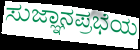
ಸುಜ್ಞಾನಪ್ರಭೆಯ